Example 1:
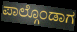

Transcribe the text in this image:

ಪಾಲ್ಗೊಂಡಾಗ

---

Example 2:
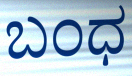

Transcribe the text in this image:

ಬಂಧ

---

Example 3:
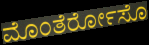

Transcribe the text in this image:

ಮೊಂತೆರ್ರೋಸೊ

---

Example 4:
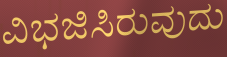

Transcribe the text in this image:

ವಿಭಜಿಸಿರುವುದು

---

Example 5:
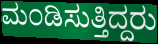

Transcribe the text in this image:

ಮಂಡಿಸುತ್ತಿದ್ದರು